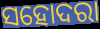
ସହୋଦରା